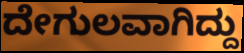
ದೇಗುಲವಾಗಿದ್ದು